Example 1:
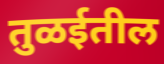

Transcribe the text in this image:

तुळईतील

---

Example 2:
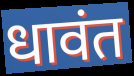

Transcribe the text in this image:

धावंत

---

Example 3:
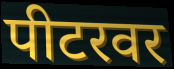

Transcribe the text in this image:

पीटरवर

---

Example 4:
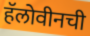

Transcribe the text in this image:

हॅलोवीनची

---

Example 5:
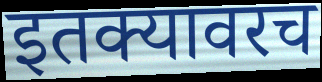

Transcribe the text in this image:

इतक्यावरच